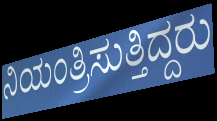
ನಿಯಂತ್ರಿಸುತ್ತಿದ್ದರು